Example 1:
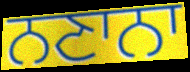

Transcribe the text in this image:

ਨਣਾਨਾ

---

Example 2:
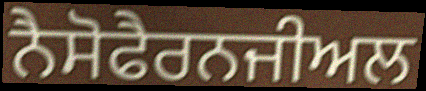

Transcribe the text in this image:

ਨੈਸੋਫੈਰਨਜੀਅਲ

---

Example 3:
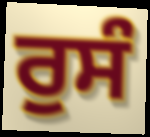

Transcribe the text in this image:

ਰੁਸੰ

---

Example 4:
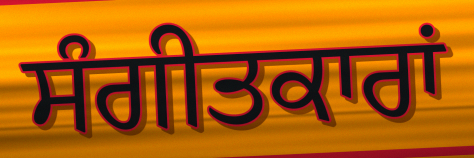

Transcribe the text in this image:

ਸੰਗੀਤਕਾਰਾਂ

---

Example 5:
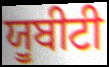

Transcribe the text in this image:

ਯੂਬੀਟੀ